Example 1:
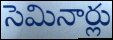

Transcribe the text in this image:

సెమినార్లు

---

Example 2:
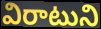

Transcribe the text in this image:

విరాటుని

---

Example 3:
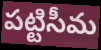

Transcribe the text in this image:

పట్టిసీమ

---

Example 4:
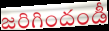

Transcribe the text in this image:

జరిగిందండీ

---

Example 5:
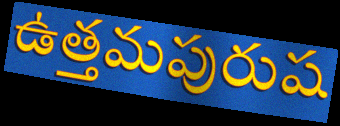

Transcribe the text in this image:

ఉత్తమపురుష